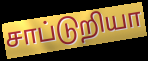
சாப்டுறியா